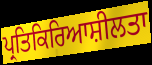
ਪ੍ਰਤਿਕਿਰਿਆਸ਼ੀਲਤਾ